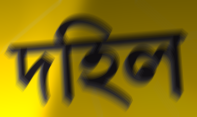
দহিল